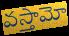
వస్తామో